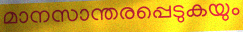
മാനസാന്തരപ്പെടുകയും